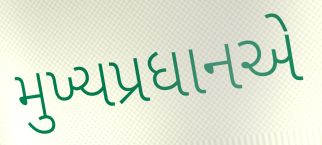
મુખ્યપ્રધાનએ